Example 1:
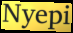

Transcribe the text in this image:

Nyepi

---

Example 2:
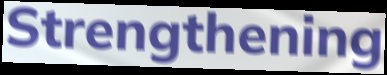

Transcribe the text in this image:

Strengthening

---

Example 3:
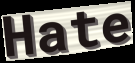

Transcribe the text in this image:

Hate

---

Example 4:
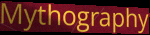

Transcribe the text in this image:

Mythography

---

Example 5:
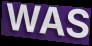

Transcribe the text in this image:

WAS